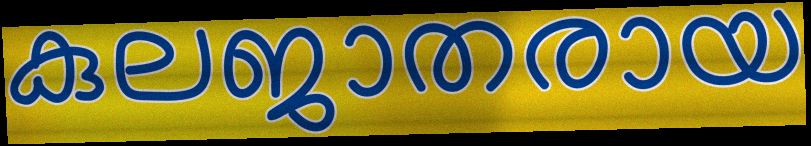
കുലജാതരായ